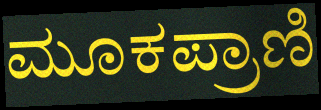
ಮೂಕಪ್ರಾಣಿ